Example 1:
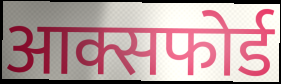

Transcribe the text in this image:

आक्सफोर्ड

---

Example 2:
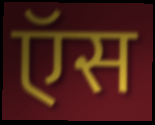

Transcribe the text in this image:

ऍस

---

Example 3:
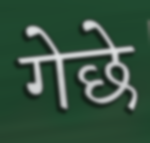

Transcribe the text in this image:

गेछे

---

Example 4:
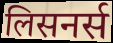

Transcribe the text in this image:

लिसनर्स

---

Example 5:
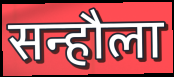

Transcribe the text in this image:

सन्हौला